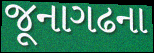
જૂનાગઢના